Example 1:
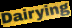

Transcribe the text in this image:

Dairying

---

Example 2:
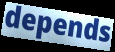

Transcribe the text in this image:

depends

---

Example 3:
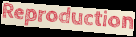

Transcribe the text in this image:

Reproduction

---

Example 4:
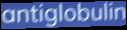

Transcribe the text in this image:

antiglobulin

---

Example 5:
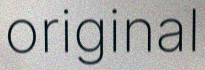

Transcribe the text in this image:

original